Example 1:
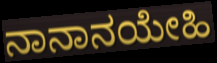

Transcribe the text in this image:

ನಾನಾನಯೇಹಿ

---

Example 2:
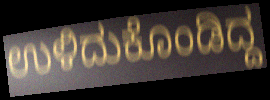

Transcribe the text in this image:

ಉಳಿದುಕೊಂಡಿದ್ದ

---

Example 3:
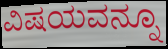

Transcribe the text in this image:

ವಿಷಯವನ್ನೂ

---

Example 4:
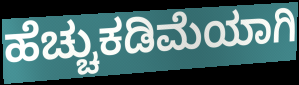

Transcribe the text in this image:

ಹೆಚ್ಚುಕಡಿಮೆಯಾಗಿ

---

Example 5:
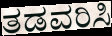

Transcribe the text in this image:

ತಡವರಿಸಿ